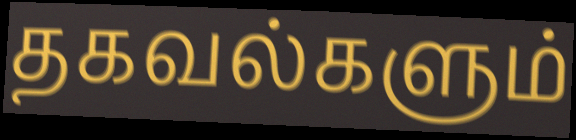
தகவல்களும்